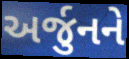
અર્જુનને